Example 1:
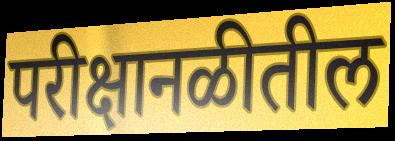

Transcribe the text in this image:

परीक्षानळीतील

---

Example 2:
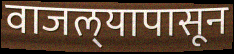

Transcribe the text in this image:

वाजल्यापासून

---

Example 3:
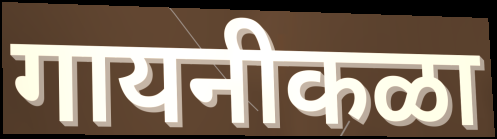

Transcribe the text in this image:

गायनीकळा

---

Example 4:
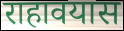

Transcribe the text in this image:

राहावयास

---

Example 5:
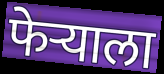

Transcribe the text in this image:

फेऱ्याला